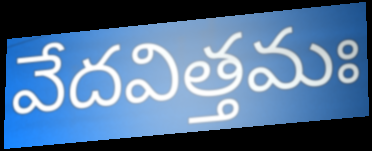
వేదవిత్తమః